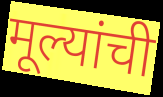
मूल्यांची